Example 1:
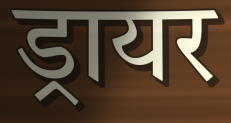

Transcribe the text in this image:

ड्रायर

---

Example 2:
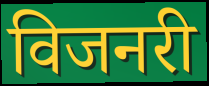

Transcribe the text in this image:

विजनरी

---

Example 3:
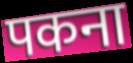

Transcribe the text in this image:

पकना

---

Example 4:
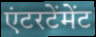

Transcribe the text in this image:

एंटरटेंमेंट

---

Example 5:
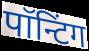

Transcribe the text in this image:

पॉन्टिंग